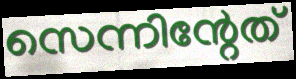
സെന്നിന്റേത്